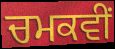
ਚਮਕਵੀਂ